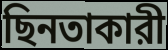
ছিনতাকারী